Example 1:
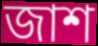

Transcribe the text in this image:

জাশ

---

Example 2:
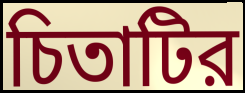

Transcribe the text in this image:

চিতাটির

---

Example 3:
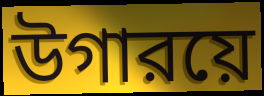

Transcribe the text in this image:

উগারয়ে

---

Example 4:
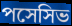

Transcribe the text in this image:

পসেসিভ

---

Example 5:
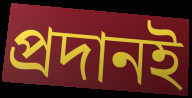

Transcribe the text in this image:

প্রদানই